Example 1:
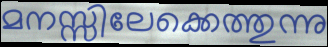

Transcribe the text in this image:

മനസ്സിലേക്കെത്തുന്നു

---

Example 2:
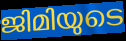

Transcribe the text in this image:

ജിമിയുടെ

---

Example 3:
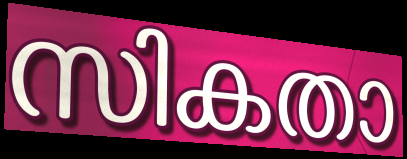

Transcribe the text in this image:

സികതാ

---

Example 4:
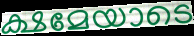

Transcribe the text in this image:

ക്ഷമേയാടെ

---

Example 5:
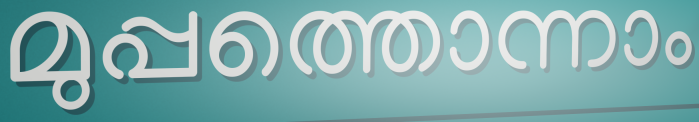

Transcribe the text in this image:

മുപ്പത്തൊന്നാം